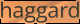
haggard